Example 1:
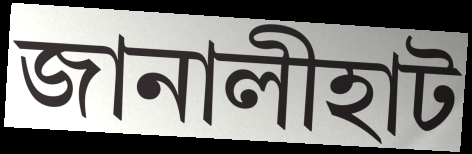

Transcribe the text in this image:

জানালীহাট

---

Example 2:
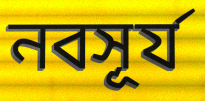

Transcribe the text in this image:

নবসূর্য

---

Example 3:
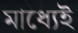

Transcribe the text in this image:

মাধ্যেই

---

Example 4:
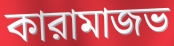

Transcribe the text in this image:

কারামাজভ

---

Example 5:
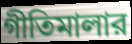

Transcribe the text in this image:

গীতিমালার